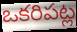
ఒకరిపట్ల